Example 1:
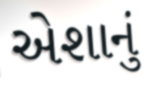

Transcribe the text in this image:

એશાનું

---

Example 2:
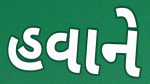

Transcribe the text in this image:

હવાને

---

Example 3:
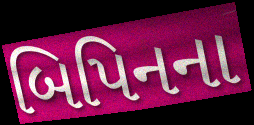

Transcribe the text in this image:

બિપિનના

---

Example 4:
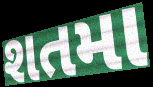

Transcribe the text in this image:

શતમા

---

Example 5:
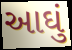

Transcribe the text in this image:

આઘું